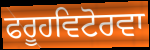
ਫਰੂਹਵਿਟੋਰਵਾ